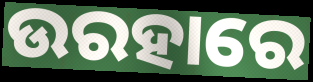
ଉରହାରେ